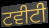
ਟਵੀਟੀ